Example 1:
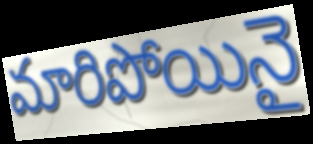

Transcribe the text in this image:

మారిపోయినై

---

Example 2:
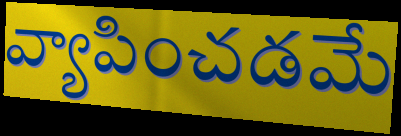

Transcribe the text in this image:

వ్యాపించడమే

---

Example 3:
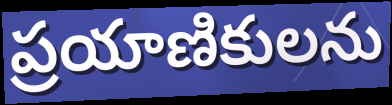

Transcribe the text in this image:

ప్రయాణికులను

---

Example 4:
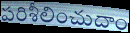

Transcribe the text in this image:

పరిశీలించుదాం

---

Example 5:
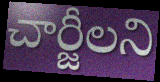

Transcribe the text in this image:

చార్జీలని